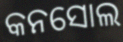
କନସୋଲ